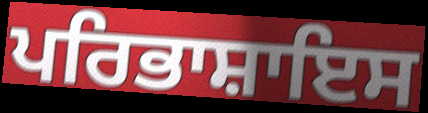
ਪਰਿਭਾਸ਼ਾਇਸ